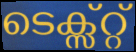
ടെക്സ്റ്റ്